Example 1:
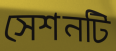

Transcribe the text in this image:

সেশনটি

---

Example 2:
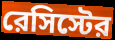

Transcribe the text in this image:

রেসিস্টের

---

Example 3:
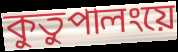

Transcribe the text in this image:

কুতুপালংয়ে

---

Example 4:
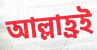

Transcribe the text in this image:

আল্লাহ্রই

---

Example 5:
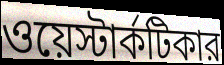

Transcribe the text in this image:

ওয়েস্টার্কটিকার